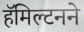
हॅमिल्टनने